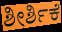
ಶೀರ್ಶಿಕೆ